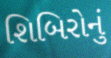
શિબિરોનું